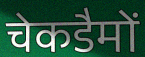
चेकडैमों